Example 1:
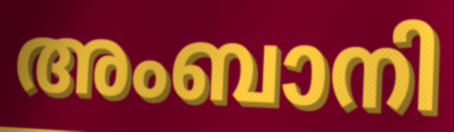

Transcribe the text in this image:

അംബാനി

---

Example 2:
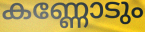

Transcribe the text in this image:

കണ്ണോടും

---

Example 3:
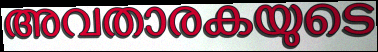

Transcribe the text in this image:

അവതാരകയുടെ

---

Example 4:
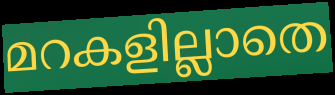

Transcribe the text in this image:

മറകളില്ലാതെ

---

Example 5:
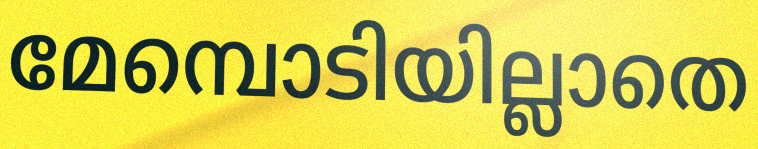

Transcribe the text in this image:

മേമ്പൊടിയില്ലാതെ